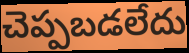
చెప్పబడలేదు